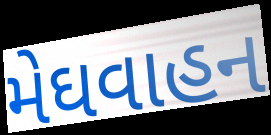
મેઘવાહન